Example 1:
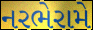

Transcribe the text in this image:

નરભેરામે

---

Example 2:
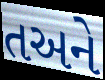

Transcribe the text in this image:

તઅને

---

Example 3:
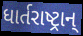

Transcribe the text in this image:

ધાર્તરાષ્ટ્રાન્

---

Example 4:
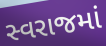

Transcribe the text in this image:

સ્વરાજમાં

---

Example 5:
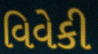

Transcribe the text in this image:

વિવેકી